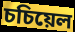
চচিয়েল